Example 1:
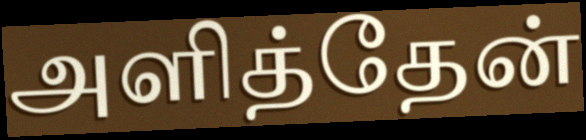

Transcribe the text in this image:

அளித்தேன்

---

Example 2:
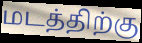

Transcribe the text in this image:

மடத்திற்கு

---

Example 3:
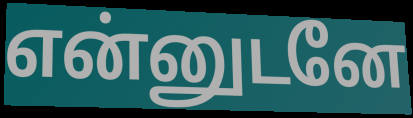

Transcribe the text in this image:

என்னுடனே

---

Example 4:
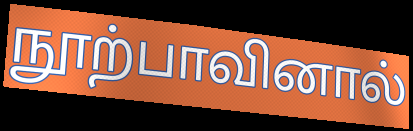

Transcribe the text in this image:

நூற்பாவினால்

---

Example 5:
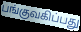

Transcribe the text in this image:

பங்குவகிப்பது